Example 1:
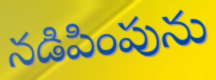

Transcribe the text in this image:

నడిపింపును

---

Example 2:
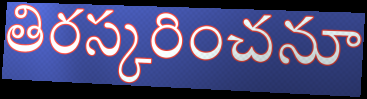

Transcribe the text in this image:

తిరస్కరించనూ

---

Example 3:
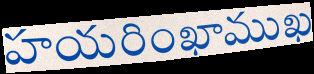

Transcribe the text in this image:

హయరింఖాముఖ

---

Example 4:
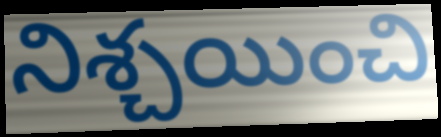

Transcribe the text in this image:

నిశ్చయించి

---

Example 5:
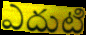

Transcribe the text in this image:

ఎదుటి